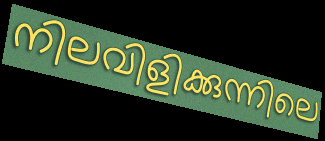
നിലവിളിക്കുന്നിലെ